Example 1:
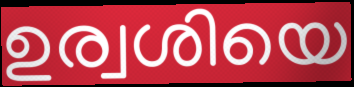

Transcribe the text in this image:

ഉര്വശിയെ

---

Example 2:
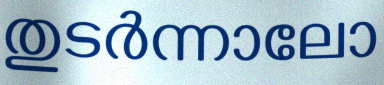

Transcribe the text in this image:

തുടർന്നാലോ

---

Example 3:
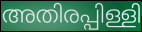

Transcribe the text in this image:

അതിരപ്പിള്ളി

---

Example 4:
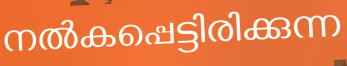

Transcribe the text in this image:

നൽകപ്പെട്ടിരിക്കുന്ന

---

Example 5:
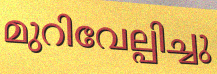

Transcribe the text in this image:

മുറിവേല്പിച്ചു